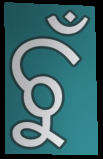
ଚୁଁ